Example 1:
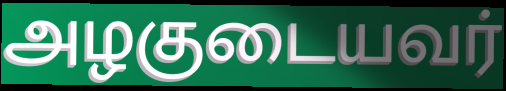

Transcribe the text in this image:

அழகுடையவர்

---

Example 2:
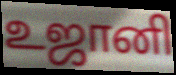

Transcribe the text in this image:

உஜானி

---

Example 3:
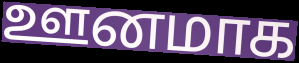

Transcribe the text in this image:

ஊனமாக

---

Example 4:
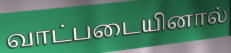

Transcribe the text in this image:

வாட்படையினால்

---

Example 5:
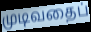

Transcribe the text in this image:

முடிவதைப்